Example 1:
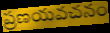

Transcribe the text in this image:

ప్రణయవచనం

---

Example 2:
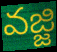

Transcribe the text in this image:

వజ్జి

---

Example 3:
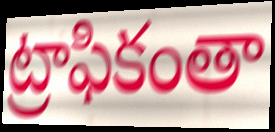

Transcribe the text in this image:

ట్రాఫికంతా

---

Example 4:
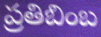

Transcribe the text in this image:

ప్రతిబింబ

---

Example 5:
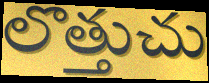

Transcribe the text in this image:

లొత్తుచు